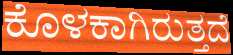
ಕೊಳಕಾಗಿರುತ್ತದೆ